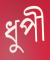
ধুপী